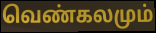
வெண்கலமும்